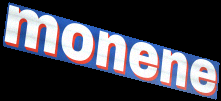
monene